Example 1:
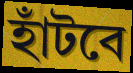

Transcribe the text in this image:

হাঁটবে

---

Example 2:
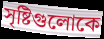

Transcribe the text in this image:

সৃষ্টিগুলোকে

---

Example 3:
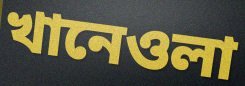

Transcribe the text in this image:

খানেওলা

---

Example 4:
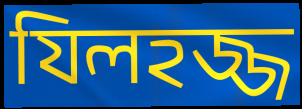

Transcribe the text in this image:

যিলহজ্জ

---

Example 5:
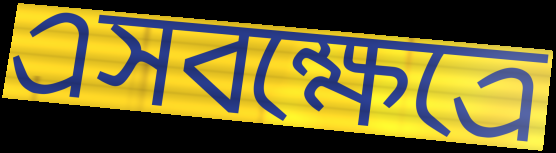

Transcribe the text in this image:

এসবক্ষেত্রে